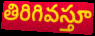
తిరిగివస్తూ